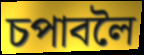
চপাবলৈ